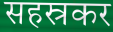
सहस्रकर